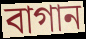
বাগান